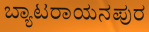
ಬ್ಯಾಟರಾಯನಪುರ